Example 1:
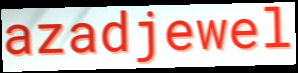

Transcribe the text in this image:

azadjewel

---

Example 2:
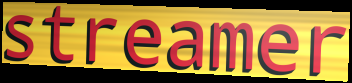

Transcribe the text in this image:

streamer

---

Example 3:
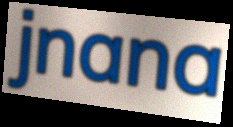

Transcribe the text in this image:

jnana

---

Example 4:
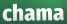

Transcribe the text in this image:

chama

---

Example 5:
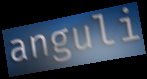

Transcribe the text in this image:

anguli